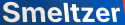
Smeltzer